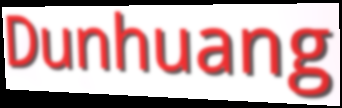
Dunhuang